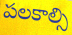
పలకాల్సి